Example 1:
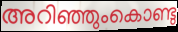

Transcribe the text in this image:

അറിഞ്ഞുംകൊണ്ടു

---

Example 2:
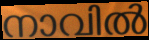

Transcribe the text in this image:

നാവിൽ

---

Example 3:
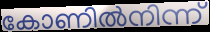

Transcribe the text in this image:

കോണിൽനിന്ന്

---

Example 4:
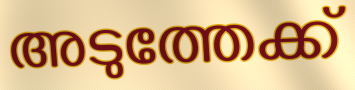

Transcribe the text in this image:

അടുത്തേക്ക്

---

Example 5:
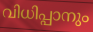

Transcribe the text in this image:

വിധിപ്പാനും